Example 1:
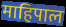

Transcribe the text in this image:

माहिपाल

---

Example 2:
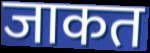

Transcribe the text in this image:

जाकत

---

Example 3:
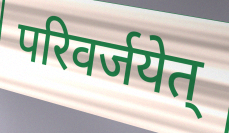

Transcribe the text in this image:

परिवर्जयेत्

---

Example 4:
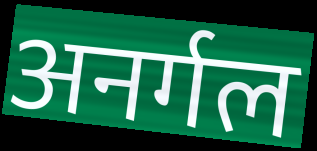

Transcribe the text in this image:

अनर्गल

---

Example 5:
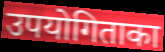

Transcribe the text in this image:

उपयोगिताका